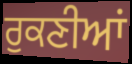
ਰੁਕਣੀਆਂ